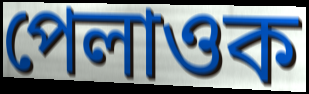
পেলাওক